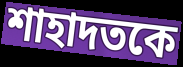
শাহাদতকে